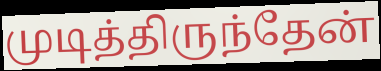
முடித்திருந்தேன்